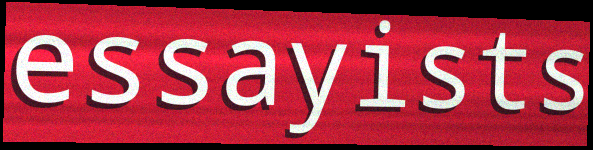
essayists